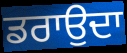
ਡਰਾਉਦਾ